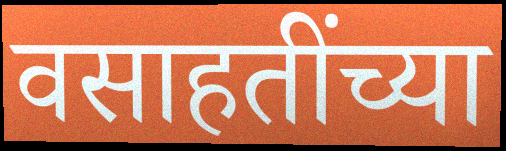
वसाहतींच्या